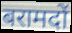
बरामदों